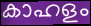
കാഹളം